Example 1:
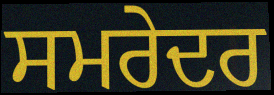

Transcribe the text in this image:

ਸਮਰੇਦਰ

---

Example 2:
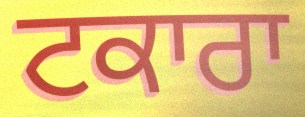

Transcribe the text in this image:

ਟਕਾਰਾ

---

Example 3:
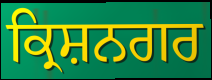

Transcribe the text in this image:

ਕ੍ਰਿਸ਼ਨਗਰ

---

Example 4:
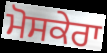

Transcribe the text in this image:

ਮੋਸਕੇਰਾ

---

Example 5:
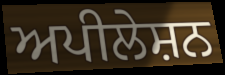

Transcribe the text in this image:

ਅਪੀਲੇਸ਼ਨ